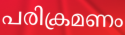
പരിക്രമണം